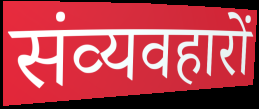
संव्‍यवहारों